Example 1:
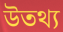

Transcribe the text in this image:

উতথ্য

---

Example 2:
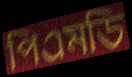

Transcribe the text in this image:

পিএমডি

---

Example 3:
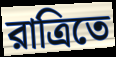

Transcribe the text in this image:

রাত্রিতে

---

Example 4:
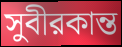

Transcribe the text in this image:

সুবীরকান্ত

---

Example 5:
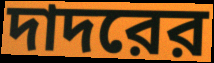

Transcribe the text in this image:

দাদরের